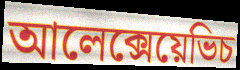
আলেক্সেয়েভিচ